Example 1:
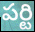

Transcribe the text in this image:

పర్టి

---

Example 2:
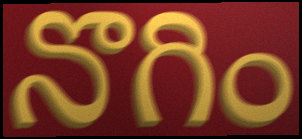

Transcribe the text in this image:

నొగిం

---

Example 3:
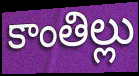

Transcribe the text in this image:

కాంతిల్లు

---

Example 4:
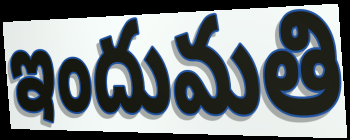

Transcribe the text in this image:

ఇందుమతి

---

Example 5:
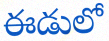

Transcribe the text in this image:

ఈడులో